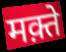
मक़्ते